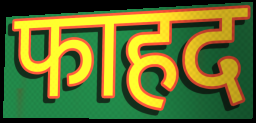
फाहद